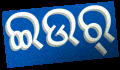
ଇଉର୍